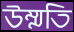
উম্মতি